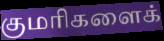
குமரிகளைக்